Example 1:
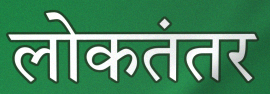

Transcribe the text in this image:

लोकतंतर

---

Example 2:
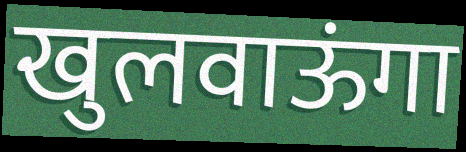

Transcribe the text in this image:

खुलवाऊंगा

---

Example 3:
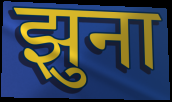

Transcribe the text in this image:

झुना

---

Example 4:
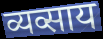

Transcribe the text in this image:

व्यव्साय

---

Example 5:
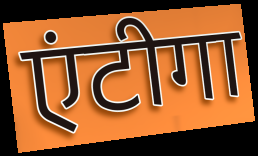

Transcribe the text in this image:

एंटीगा